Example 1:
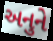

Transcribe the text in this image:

અનુને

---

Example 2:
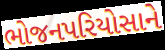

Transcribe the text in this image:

ભોજનપરિયોસાને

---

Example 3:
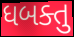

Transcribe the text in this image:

ધબક્તુ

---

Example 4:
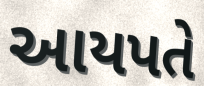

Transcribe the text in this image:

આયપતે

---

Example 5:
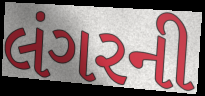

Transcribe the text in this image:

લંગરની